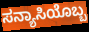
ಸನ್ಯಾಸಿಯೊಬ್ಬ